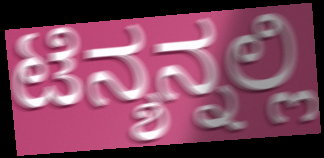
ಟೆನ್ಶನ್ನಲ್ಲಿ